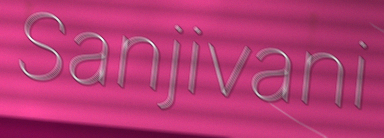
Sanjivani